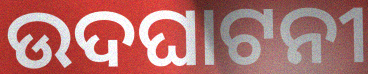
ଉଦଘାଟନୀ